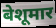
बेशूमार